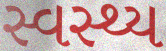
સ્વસ્થ્ય